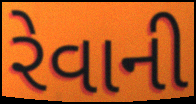
રેવાની